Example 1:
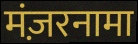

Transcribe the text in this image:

मंज़रनामा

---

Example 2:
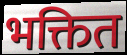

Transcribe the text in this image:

भक्तित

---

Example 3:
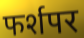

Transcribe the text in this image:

फर्शपर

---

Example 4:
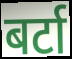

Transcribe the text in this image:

बर्टा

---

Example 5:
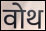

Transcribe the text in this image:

वोथ